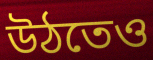
উঠতেও